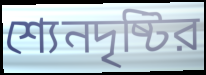
শ্যেনদৃষ্টির